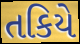
તકિયે